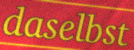
daselbst